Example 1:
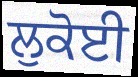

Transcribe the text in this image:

ਲੁਕੋਈ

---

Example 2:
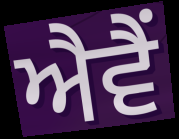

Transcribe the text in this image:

ਐਵੈਂ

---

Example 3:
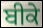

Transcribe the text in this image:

ਬੀਕੇ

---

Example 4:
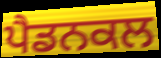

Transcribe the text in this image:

ਪੈਡਨਕਲ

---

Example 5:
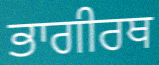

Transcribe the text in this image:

ਭਾਗੀਰਥ